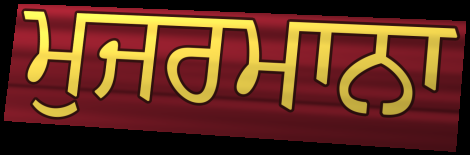
ਮੁਜਰਮਾਨਾ